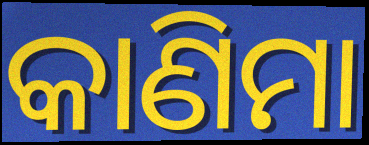
କାଣିମା